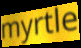
myrtle